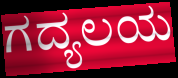
ಗದ್ಯಲಯ